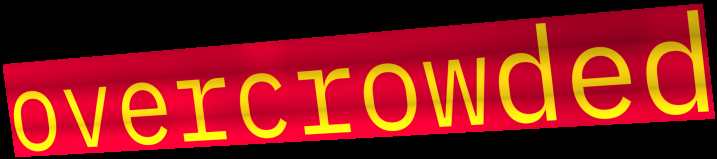
overcrowded